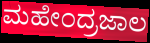
ಮಹೇಂದ್ರಜಾಲ